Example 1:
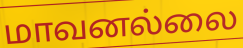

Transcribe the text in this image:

மாவனல்லை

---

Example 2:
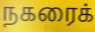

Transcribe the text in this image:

நகரைக்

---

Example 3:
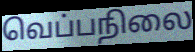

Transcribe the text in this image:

வெப்பநிலை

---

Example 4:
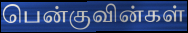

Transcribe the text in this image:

பென்குவின்கள்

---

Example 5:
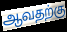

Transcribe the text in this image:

ஆவதற்கு